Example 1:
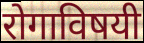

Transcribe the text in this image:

रोगाविषयी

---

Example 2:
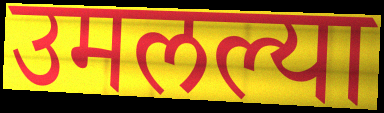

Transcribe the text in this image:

उमलल्या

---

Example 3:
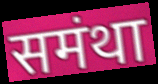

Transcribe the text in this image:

समंथा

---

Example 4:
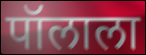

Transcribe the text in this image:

पॉलाला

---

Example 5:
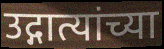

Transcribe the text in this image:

उद्गात्यांच्या